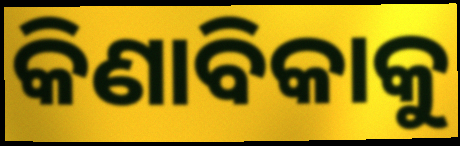
କିଣାବିକାକୁ